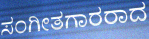
ಸಂಗೀತಗಾರರಾದ